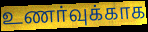
உணர்வுக்காக